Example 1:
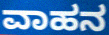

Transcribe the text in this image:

ವಾಹನ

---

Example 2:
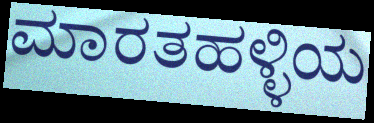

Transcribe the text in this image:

ಮಾರತಹಳ್ಳಿಯ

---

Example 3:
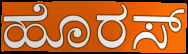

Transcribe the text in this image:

ಹೊರಸ್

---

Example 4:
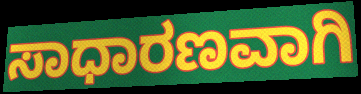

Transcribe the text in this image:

ಸಾಧಾರಣವಾಗಿ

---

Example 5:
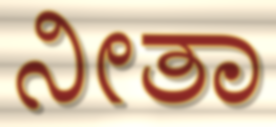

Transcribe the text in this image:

ನೀತಾ